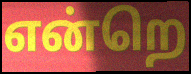
என்றெ